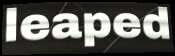
leaped